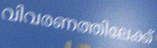
വിവരണത്തിലേക്ക്